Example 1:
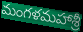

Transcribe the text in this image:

మంగళమహాశ్రీ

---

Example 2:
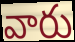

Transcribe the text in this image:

వారు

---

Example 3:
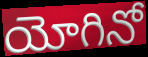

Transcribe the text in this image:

యోగినో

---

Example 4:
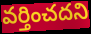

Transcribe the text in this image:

వర్తించదని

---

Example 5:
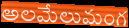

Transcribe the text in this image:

అలమేలుమంగ